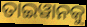
ତାଇୱାନକୁ